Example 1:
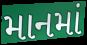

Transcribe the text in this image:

માનમાં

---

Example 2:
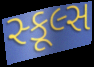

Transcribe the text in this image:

સ્કૂલ્સ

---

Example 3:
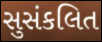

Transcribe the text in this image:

સુસંકલિત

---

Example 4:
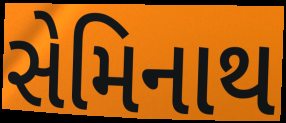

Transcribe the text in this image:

સેમિનાથ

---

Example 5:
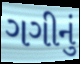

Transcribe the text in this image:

ગગીનું